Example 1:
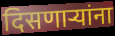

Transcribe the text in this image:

दिसणाऱ्यांना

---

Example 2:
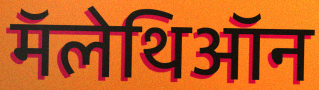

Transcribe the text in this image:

मॅलेथिऑन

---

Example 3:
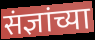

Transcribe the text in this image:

संज्ञांच्या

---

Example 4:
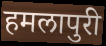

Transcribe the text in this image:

हमलापुरी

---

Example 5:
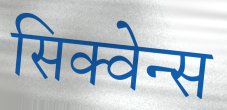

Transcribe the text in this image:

सिक्वेन्स